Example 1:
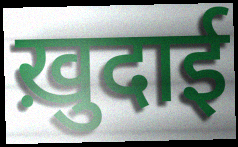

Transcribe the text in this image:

ख़ुदाई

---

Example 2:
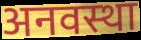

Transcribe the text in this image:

अनवस्था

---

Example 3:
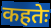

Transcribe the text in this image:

कहतेः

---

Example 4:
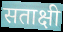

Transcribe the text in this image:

सताक्षी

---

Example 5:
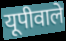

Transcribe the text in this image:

यूपीवाले